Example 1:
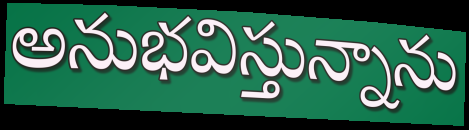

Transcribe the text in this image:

అనుభవిస్తున్నాను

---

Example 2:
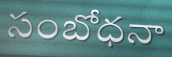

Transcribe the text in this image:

సంబోధనా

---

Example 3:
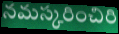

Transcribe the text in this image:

నమస్కరించిరి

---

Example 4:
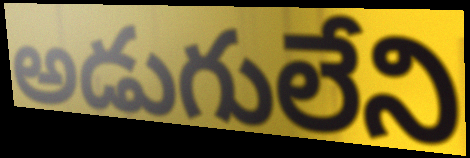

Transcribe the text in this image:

అడుగులేని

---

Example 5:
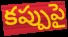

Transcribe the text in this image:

కప్పుపై